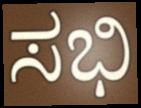
ಸಭಿ